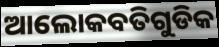
ଆଲୋକବତିଗୁଡିକ